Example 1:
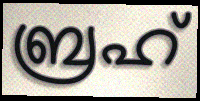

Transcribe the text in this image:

ബ്രഹ്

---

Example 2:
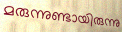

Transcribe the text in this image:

മരുന്നുണ്ടായിരുന്നു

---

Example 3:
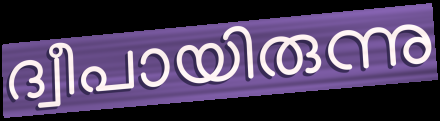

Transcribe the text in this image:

ദ്വീപായിരുന്നു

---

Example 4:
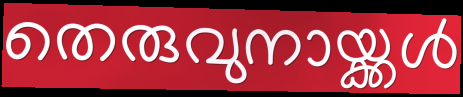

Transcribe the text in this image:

തെരുവുനായ്ക്കൾ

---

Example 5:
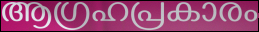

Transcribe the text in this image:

ആഗ്രഹപ്രകാരം